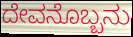
ದೇವನೊಬ್ಬನು